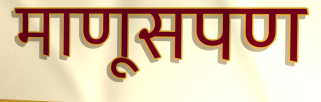
माणूसपण